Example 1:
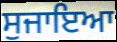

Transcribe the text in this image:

ਸੁਜਾਇਆ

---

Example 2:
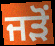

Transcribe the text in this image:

ਜਡ਼ੋਂ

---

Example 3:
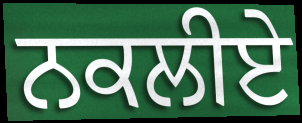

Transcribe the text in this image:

ਨਕਲੀਏ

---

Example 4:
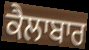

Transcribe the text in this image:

ਕੈਲਾਬਾਰ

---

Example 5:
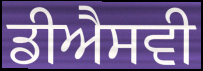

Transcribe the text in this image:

ਡੀਐਸਵੀ